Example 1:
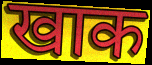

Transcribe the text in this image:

खाक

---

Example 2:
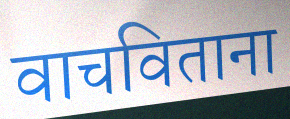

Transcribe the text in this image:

वाचविताना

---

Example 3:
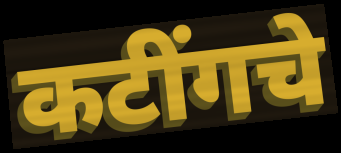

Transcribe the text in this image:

कटींगचे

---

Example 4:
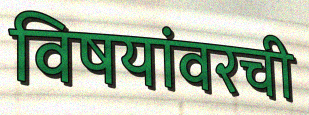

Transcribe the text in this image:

विषयांवरची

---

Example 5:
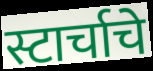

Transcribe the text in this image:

स्टार्चाचे